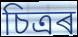
চিত্ৰৰ